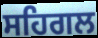
ਸਹਿਗਲ